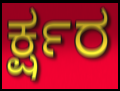
ರ್ಕ್ಷರ